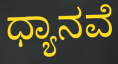
ಧ್ಯಾನವೆ